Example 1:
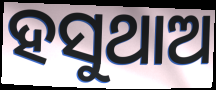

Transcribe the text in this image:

ହସୁଥାଅ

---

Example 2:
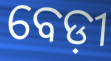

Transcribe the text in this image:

ବେଡ଼ୀ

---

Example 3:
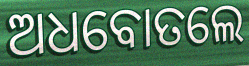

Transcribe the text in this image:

ଅଧବୋତଲେ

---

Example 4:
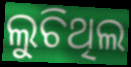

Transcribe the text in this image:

ଲୁଚିଥିଲ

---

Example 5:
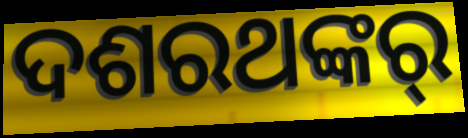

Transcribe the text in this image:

ଦଶରଥଙ୍କର୍